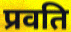
प्रवति